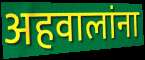
अहवालांना